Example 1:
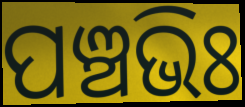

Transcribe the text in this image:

ପଞ୍ଚଭିଃ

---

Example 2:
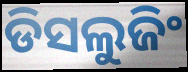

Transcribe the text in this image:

ଡିସଲୁଜିଂ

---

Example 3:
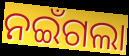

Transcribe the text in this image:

ନଇଁଗଲା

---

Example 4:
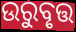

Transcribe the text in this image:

ଉରୁବୃତ୍ତ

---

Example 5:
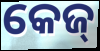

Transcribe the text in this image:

କେଜ୍